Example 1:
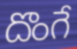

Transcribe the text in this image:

దొంగే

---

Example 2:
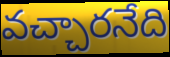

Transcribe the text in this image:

వచ్చారనేది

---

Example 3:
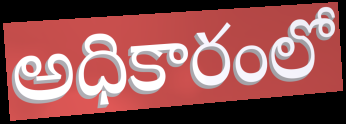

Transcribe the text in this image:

అధికారంలో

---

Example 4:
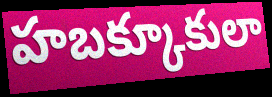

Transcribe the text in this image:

హబక్కూకులా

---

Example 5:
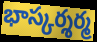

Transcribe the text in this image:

భాస్కర్శర్మ